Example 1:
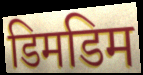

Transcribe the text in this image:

डिमडिम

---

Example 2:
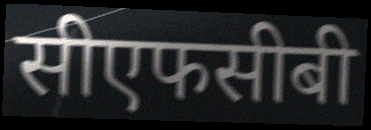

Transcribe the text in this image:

सीएफसीबी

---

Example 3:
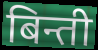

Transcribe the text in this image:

बिन्ती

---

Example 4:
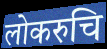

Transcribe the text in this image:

लोकरुचि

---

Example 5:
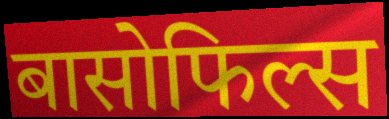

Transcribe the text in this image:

बासोफिल्स